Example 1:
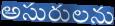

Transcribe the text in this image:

అసురులను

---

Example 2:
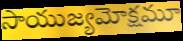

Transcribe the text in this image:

సాయుజ్యమోక్షమూ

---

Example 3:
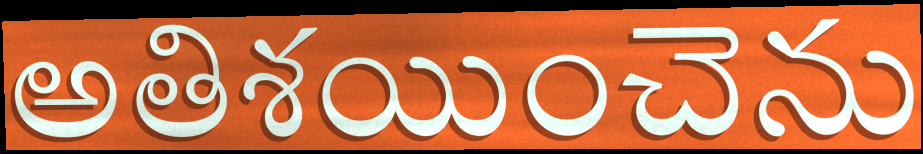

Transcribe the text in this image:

అతిశయించెను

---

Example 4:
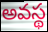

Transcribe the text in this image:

అవస్థ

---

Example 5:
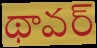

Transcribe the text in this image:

థావర్